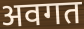
अवगत